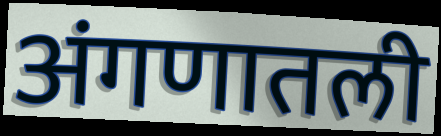
अंगणातली